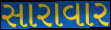
સારાવાર